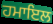
ਹਮਾਇਲ